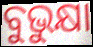
ବୁଭୁକ୍ଷା